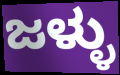
ಜಳ್ಳು